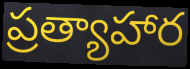
ప్రత్యాహార